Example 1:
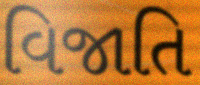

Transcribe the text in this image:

વિજાતિ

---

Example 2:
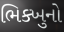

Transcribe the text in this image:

ભિક્ખુનો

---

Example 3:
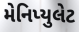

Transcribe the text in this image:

મેનિપ્યુલેટ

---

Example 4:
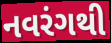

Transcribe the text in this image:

નવરંગથી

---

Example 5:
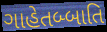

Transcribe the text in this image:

ગાહેતબ્બાતિ